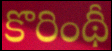
కొరింథీ